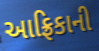
આફ્રિકાની